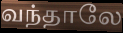
வந்தாலே